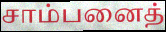
சாம்பனைத்